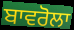
ਬਾਵਰੋਲਾ